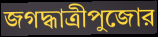
জগদ্ধাত্রীপুজোর